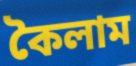
কৈলাম